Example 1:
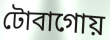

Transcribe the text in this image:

টোবাগোয়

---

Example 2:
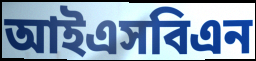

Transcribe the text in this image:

আইএসবিএন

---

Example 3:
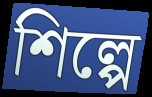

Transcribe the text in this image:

শিল্পে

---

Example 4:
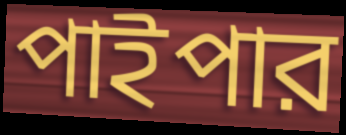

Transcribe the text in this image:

পাইপার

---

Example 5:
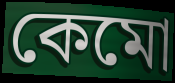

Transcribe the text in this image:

কেমো